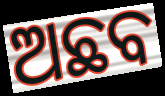
ଅଛବ